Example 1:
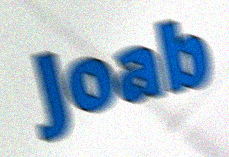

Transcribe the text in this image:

Joab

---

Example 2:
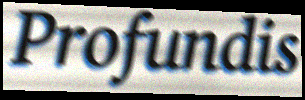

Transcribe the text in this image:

Profundis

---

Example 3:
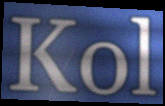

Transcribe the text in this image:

Kol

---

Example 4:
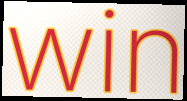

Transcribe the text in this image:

win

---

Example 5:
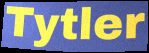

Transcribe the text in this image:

Tytler